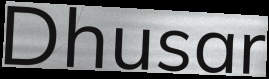
Dhusar